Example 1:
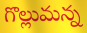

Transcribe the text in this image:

గొల్లుమన్న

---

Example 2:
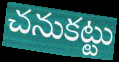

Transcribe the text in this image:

చనుకట్టు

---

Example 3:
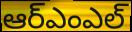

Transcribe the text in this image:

ఆర్ఎంఎల్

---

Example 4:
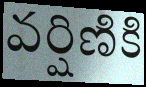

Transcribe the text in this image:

వర్షిణికి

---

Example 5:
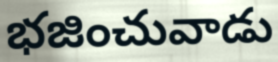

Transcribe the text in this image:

భజించువాడు